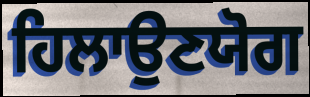
ਹਿਲਾਉਣਯੋਗ